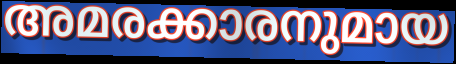
അമരക്കാരനുമായ